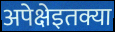
अपेक्षेइतक्या